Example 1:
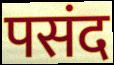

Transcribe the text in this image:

पसंद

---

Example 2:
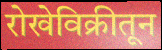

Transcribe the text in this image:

रोखेविक्रीतून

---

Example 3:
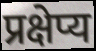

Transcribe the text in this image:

प्रक्षेप्य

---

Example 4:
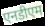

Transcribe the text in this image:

एनडीएम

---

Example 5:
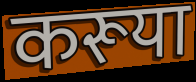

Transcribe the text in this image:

करूया